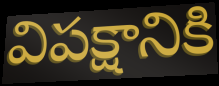
విపక్షానికి